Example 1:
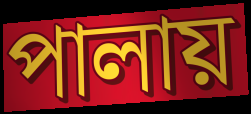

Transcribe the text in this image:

পালায়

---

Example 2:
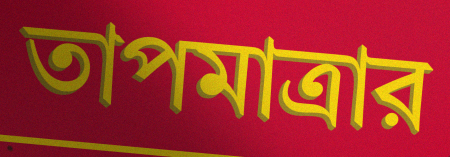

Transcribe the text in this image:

তাপমাত্রার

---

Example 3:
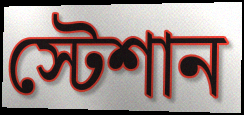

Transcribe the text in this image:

স্টেশান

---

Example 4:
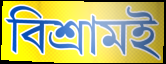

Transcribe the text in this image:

বিশ্রামই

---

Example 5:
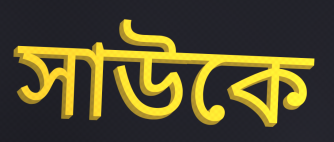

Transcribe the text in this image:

সাউকে